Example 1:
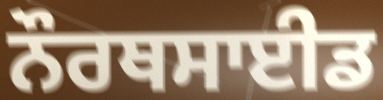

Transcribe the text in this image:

ਨੌਰਥਸਾਈਡ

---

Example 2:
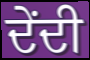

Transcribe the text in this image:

ਦੇਂਦੀ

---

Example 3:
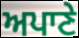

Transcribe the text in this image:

ਅਪਾਣੇ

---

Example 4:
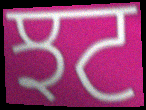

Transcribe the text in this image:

ਝਟ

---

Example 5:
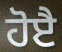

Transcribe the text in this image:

ਹੋੲੈ